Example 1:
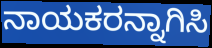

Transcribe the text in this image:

ನಾಯಕರನ್ನಾಗಿಸಿ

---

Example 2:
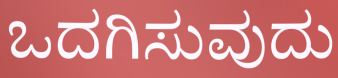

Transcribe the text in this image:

ಒದಗಿಸುವುದು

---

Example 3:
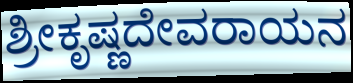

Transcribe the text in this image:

ಶ್ರೀಕೃಷ್ಣದೇವರಾಯನ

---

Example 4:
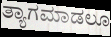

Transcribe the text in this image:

ತ್ಯಾಗಮಾಡಲೂ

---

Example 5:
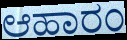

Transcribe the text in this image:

ಆಹಾರಂ